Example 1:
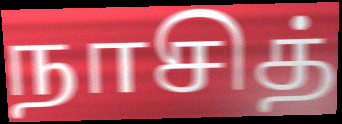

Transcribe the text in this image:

நாசித்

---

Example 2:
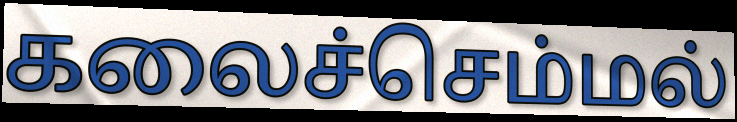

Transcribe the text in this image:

கலைச்செம்மல்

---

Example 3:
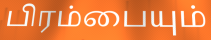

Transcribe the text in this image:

பிரம்பையும்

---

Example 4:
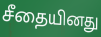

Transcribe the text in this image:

சீதையினது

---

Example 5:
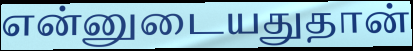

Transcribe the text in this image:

என்னுடையதுதான்